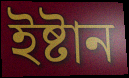
ইষ্টান